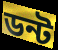
ডন্ট